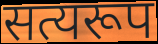
सत्यरूप